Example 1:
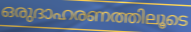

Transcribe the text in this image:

ഒരുദാഹരണത്തിലൂടെ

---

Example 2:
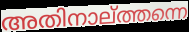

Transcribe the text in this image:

അതിനാല്ത്തന്നെ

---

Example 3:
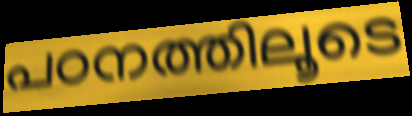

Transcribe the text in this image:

പഠനത്തിലൂടെ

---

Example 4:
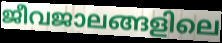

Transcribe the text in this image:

ജീവജാലങ്ങളിലെ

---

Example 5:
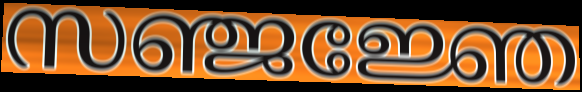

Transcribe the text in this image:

സഞ്ജജ്ഞേ